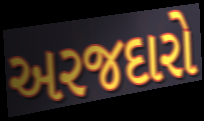
અરજદારો